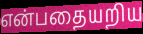
என்பதையறிய